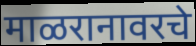
माळरानावरचे